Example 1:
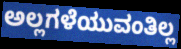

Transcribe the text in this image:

ಅಲ್ಲಗಳೆಯುವಂತಿಲ್ಲ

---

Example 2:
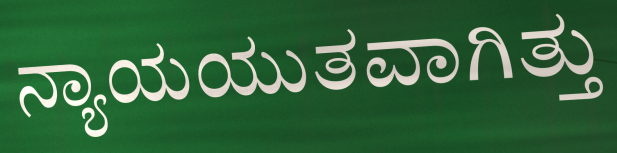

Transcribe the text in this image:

ನ್ಯಾಯಯುತವಾಗಿತ್ತು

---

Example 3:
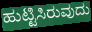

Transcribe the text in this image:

ಹುಟ್ಟಿಸಿರುವುದು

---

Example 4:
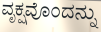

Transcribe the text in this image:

ವೃಕ್ಷವೊಂದನ್ನು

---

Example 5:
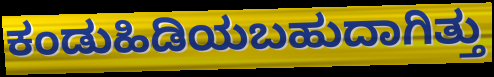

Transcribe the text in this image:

ಕಂಡುಹಿಡಿಯಬಹುದಾಗಿತ್ತು